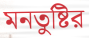
মনতুষ্টির